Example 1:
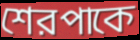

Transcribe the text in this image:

শেরপাকে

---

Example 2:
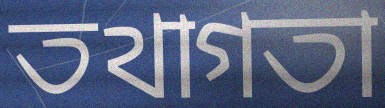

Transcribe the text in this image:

তথাগতা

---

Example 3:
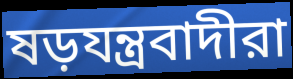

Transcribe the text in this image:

ষড়যন্ত্রবাদীরা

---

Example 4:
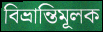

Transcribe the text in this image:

বিভ্রান্তিমূলক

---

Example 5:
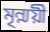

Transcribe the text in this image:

মৃন্ময়ী